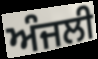
ਅੰਜਲੀ